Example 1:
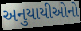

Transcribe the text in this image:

અનુયાયીઓનો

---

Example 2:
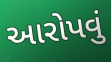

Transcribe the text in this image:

આરોપવું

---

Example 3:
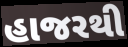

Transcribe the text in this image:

હાજરથી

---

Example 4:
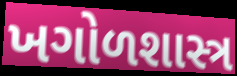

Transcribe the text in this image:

ખગોળશાસ્ત્ર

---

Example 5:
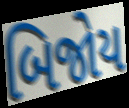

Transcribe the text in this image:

બિજોય